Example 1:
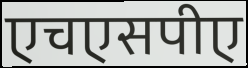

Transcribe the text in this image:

एचएसपीए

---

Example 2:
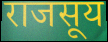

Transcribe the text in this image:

राजसूय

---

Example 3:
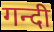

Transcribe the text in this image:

गन्दी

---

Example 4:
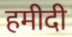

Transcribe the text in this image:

हमीदी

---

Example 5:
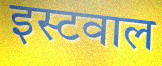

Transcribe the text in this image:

इस्टवाल